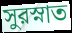
সুরস্নাত